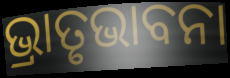
ଭ୍ରାତୃଭାବନା